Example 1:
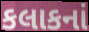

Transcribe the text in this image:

કલાકનાં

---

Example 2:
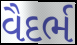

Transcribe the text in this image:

વૈદર્ભ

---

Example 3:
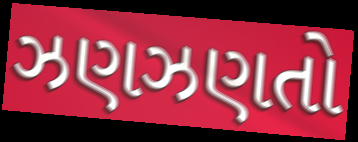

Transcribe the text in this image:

ઝણઝણતો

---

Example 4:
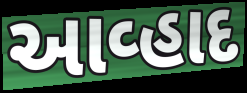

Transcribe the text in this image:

આવ્હાદ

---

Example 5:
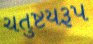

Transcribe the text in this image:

ચતુષ્ટયરૂપ